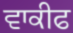
ਵਾਕੀਫ